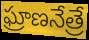
ఘ్రాణనేత్రే